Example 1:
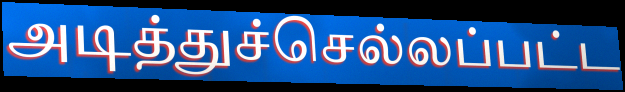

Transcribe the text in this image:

அடித்துச்செல்லப்பட்ட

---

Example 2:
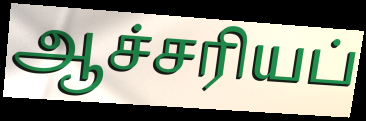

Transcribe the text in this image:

ஆச்சரியப்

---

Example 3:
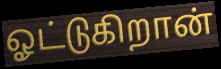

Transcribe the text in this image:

ஓட்டுகிறான்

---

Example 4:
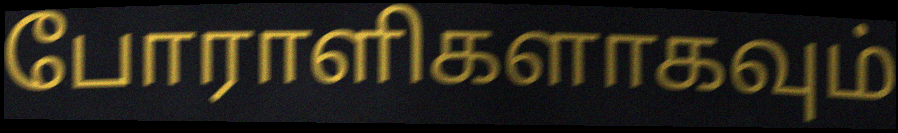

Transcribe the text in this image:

போராளிகளாகவும்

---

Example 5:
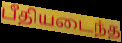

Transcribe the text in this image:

பீதியடைந்த